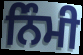
ਨਿੰਮੀ